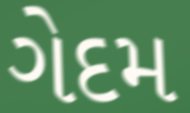
ગેદમ